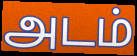
அடம்